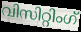
വിസിറ്റിംഗ്